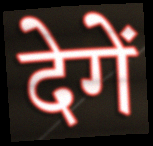
देगें